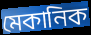
মেকানিক